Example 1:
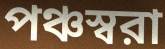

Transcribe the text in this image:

পঞ্চস্বরা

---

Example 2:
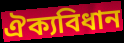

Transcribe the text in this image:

ঐক্যবিধান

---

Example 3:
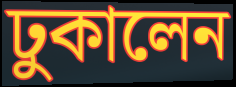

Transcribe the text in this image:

ঢুকালেন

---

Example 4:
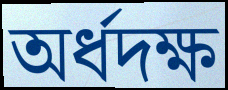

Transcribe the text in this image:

অর্ধদক্ষ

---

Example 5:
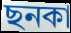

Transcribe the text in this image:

ছনকা